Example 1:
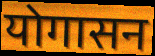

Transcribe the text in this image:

योगासन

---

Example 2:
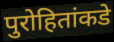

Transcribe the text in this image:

पुरोहितांकडे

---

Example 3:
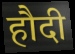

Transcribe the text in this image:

हौदी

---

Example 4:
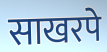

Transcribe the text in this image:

साखरपे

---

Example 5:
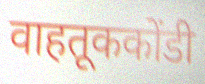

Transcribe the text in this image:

वाहतूककोंडी